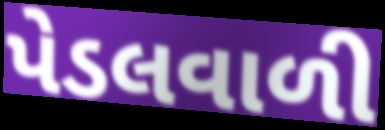
પેડલવાળી